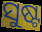
ସୁଷ୍ଟ